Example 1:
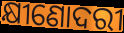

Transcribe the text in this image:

କ୍ଷୀଣୋଦରୀ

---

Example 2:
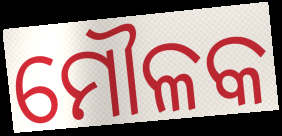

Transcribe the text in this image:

ମୌଳକ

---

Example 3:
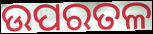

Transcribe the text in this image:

ଉପରତଳ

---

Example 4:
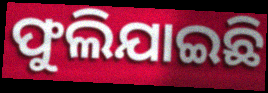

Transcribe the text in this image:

ଫୁଲିଯାଇଛି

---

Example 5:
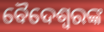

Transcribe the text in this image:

ବୈଦେଶ୍ୱରଙ୍କ